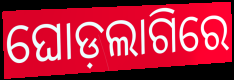
ଘୋଡ଼ଲାଗିରେ